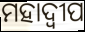
ମହାଦ୍ୱୀପ